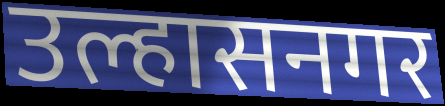
उल्हासनगर